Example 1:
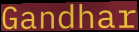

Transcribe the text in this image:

Gandhar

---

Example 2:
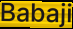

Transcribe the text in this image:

Babaji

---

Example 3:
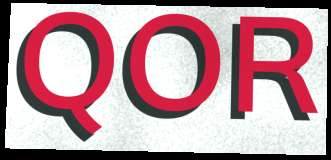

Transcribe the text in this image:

QOR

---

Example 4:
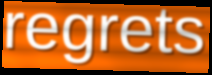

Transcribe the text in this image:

regrets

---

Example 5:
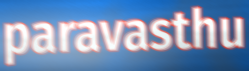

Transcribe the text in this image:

paravasthu